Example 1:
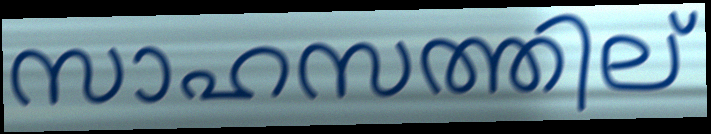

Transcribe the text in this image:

സാഹസത്തില്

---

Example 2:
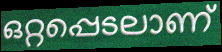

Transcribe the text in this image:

ഒറ്റപ്പെടലാണ്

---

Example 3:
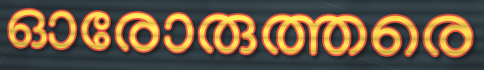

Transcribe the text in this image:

ഓരോരുത്തരെ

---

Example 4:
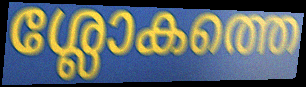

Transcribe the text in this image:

ശ്ലോകത്തെ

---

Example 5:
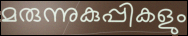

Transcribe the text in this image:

മരുന്നുകുപ്പികളും